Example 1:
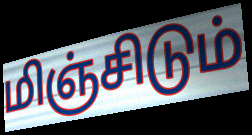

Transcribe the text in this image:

மிஞ்சிடும்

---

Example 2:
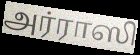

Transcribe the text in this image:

அர்ராஸி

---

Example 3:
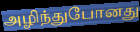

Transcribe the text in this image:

அழிந்துபோனது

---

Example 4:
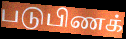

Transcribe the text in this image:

படுபிணக்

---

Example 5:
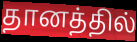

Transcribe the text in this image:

தானத்தில்